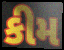
કીમ